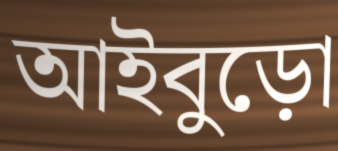
আইবুড়ো